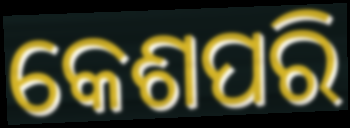
କେଶପରି